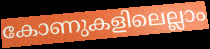
കോണുകളിലെല്ലാം